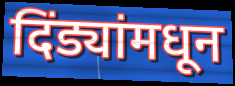
दिंड्यांमधून